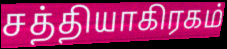
சத்தியாகிரகம்